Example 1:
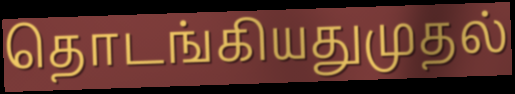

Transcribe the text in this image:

தொடங்கியதுமுதல்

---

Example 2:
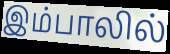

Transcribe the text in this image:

இம்பாலில்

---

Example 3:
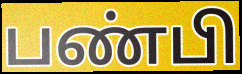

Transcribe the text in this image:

பண்பி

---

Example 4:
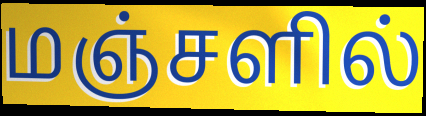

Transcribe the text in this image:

மஞ்சளில்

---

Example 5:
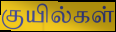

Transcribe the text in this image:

குயில்கள்